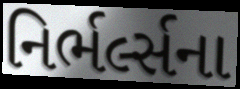
નિર્ભર્લ્સના